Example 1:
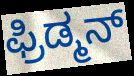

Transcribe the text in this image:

ಫ್ರಿಡ್ಮನ್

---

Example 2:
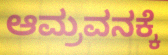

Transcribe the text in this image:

ಆಮ್ರವನಕ್ಕೆ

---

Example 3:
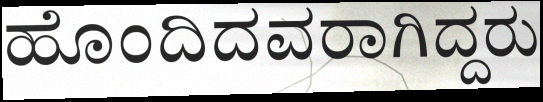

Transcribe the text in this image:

ಹೊಂದಿದವರಾಗಿದ್ದರು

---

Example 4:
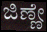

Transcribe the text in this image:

ಜಿಣ್ಣೇ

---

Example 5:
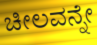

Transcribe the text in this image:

ಚೀಲವನ್ನೇ